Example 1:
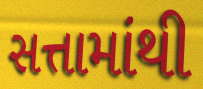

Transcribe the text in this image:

સત્તામાંથી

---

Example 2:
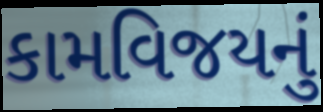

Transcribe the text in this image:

કામવિજયનું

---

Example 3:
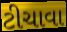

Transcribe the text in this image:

ટીચાવા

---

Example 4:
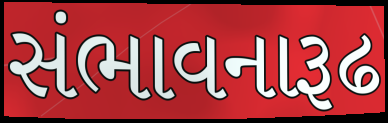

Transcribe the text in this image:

સંભાવનારૂઢ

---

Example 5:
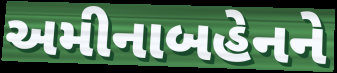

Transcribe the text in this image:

અમીનાબહેનને